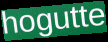
hogutte